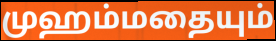
முஹம்மதையும்